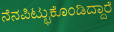
ನೆನಪಿಟ್ಟುಕೊಂಡಿದ್ದಾರೆ